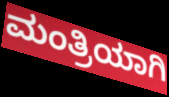
ಮಂತ್ರಿಯಾಗಿ